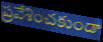
ప్రవేశించకుండా